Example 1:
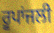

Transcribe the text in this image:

ਰੂਪਾਂਜਲੀ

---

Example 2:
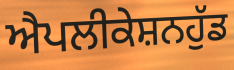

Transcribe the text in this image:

ਐਪਲੀਕੇਸ਼ਨਹੁੱਡ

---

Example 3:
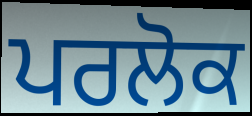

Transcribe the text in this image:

ਪਰਲੋਕ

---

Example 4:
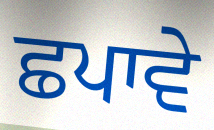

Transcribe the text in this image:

ਛਪਾਵੇ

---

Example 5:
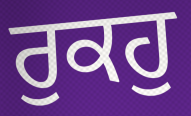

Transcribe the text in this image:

ਰੁਕਹੁ